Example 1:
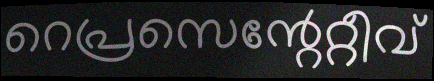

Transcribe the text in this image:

റെപ്രസെന്റേറ്റീവ്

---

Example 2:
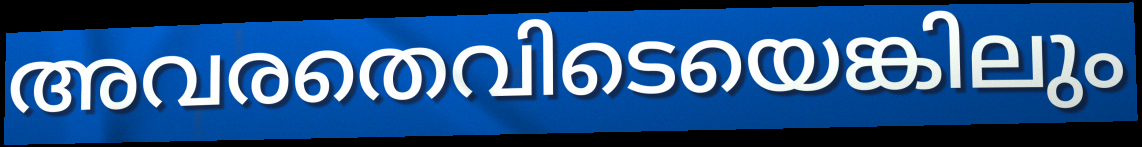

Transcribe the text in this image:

അവരതെവിടെയെങ്കിലും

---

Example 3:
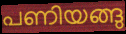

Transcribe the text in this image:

പണിയങ്ങു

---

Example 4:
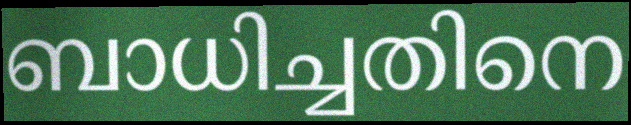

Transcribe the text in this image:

ബാധിച്ചതിനെ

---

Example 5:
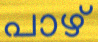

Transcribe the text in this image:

പാഴ്